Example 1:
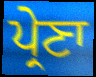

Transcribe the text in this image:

ਪ੍ਰੇਣਾ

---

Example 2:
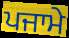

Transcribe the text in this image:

ਪਜਾਮੇ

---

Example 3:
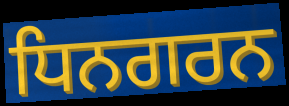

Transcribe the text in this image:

ਧਿਨਗਰਨ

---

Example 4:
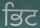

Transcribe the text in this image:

ਭਿਟ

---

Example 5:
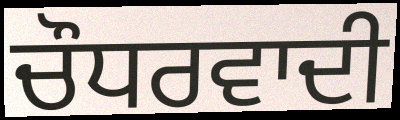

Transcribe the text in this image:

ਚੌਧਰਵਾਦੀ